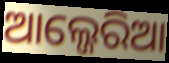
ଆଲ୍ଜେରିଆ